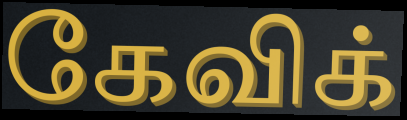
கேவிக்